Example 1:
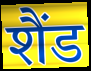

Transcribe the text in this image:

शैंड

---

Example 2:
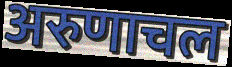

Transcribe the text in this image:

अरुणाचल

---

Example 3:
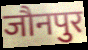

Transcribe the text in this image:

जौनपुर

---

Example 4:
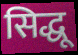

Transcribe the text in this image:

सिद्धू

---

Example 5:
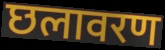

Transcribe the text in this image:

छलावरण